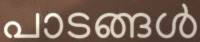
പാടങ്ങൾ